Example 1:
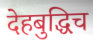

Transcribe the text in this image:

देहबुद्धिच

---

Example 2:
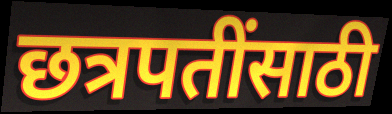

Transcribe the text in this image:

छत्रपतींसाठी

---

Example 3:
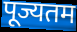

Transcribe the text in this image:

पूज्यतम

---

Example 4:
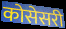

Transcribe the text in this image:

कोसेसरी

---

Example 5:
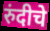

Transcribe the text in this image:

रुंदीचे